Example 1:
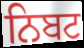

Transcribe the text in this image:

ਨਿਬਟ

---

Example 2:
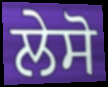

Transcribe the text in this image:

ਲੇਸੋ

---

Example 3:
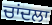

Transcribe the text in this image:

ਚਾਂਦਲਾ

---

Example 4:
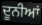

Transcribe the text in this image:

ਦੂਨੀਆਂ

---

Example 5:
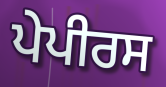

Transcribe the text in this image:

ਪੇਪੀਰਸ